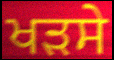
ਖੜਸੇ